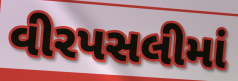
વીરપસલીમાં